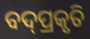
ବଦ୍‌ପ୍ରକୃତି